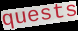
quests